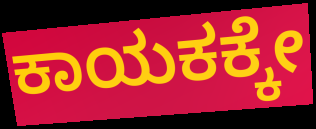
ಕಾಯಕಕ್ಕೇ